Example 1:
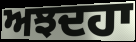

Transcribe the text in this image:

ਅਝਦਹਾ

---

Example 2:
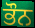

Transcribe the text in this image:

ਭੌਨ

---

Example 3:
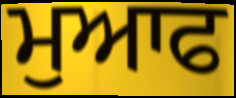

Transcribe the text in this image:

ਮੁਆਫ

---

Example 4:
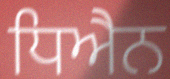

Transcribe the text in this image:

ਧਿਐਨ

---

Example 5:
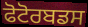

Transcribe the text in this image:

ਫੋਟੋਰਬਡਸ